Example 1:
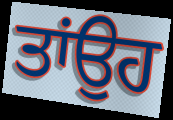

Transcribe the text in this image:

ਤਾਂਉਹ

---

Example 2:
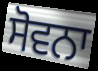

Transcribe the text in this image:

ਸੋਵਨਾ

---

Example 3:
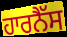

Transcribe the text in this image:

ਹਾਰਨੈੱਸ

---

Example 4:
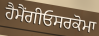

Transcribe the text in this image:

ਹੈਮੈਂਗੀਓਸਰਕੋਮਾ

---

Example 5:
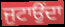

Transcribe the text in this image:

ਜੁਟਾਉਂਦਾ